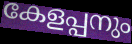
കേളപ്പനും